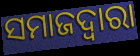
ସମାଜଦ୍ଵାରା